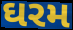
ઘરમ